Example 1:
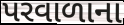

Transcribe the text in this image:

પરવાળાના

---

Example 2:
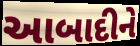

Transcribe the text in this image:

આબાદીને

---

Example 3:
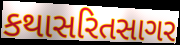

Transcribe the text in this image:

કથાસરિતસાગર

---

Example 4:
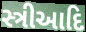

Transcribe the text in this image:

સ્ત્રીઆદિ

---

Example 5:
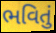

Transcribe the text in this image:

ભવિતું